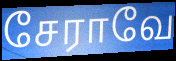
சேராவே